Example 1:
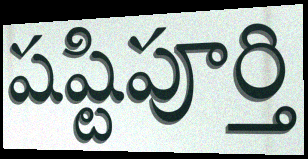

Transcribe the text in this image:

షష్టిపూర్తి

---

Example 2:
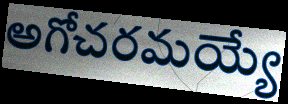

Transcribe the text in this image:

అగోచరమయ్యే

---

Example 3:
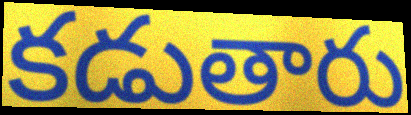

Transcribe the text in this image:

కడుతారు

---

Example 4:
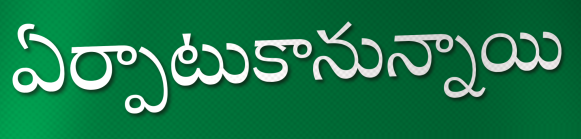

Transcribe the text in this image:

ఏర్పాటుకానున్నాయి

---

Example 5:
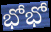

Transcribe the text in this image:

భోభో